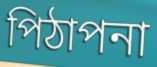
পিঠাপনা